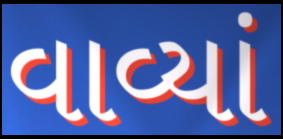
વાવ્યાં